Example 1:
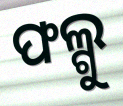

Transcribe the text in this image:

ଫଲ୍ଗୁ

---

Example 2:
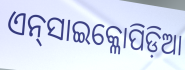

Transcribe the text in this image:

ଏନ୍‌ସାଇକ୍ଳୋପିଡ଼ିଆ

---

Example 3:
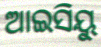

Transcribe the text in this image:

ଆଇସିୟୁ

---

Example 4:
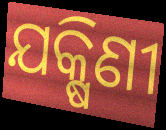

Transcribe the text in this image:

ଯକ୍ଷିଣୀ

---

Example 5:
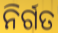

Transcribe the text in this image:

ନିର୍ଗତ